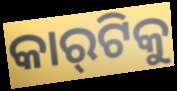
କାର୍‌ଟିକୁ